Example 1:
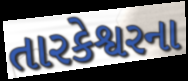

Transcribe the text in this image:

તારકેશ્વરના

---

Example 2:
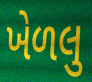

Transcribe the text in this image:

ખેળલુ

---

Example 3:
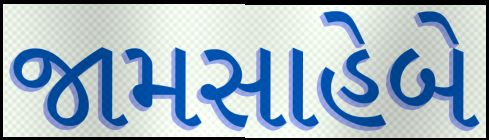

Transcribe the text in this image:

જામસાહેબે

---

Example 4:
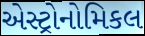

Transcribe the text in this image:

એસ્ટ્રોનોમિકલ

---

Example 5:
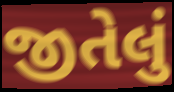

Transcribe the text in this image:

જીતેલું